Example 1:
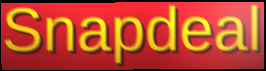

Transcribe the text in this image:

Snapdeal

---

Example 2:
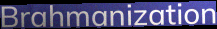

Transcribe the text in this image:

Brahmanization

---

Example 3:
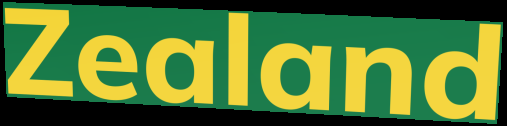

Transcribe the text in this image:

Zealand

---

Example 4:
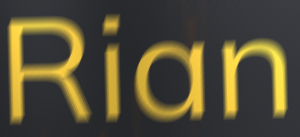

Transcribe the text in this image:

Rian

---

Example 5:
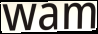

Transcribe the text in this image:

wam